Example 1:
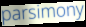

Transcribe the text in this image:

parsimony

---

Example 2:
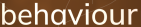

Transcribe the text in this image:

behaviour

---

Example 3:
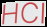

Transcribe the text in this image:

HCl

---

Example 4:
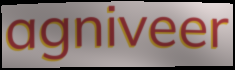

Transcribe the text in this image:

agniveer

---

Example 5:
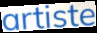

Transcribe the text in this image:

artiste